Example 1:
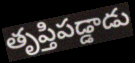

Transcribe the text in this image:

తృప్తిపడ్డాడు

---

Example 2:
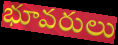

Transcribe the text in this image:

భూవరులు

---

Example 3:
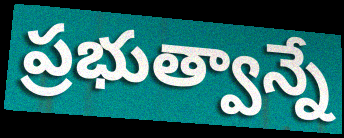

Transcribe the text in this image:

ప్రభుత్వాన్నే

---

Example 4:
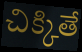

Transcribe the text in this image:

చిక్కితే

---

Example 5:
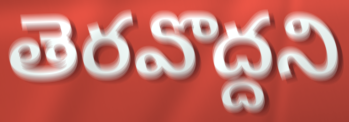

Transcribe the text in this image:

తెరవొద్దని